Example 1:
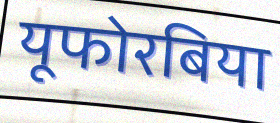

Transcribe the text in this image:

यूफोरबिया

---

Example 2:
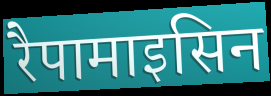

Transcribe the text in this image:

रैपामाइसिन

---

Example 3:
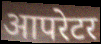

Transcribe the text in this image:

आपरेटर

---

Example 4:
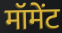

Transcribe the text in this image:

मॉमेंट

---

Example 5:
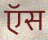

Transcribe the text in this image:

ऍस